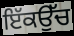
ਇੱਕਉੱਚ